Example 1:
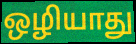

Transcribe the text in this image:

ஒழியாது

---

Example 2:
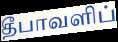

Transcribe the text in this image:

தீபாவளிப்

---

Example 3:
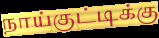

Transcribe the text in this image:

நாய்குட்டிக்கு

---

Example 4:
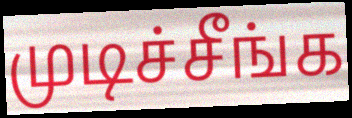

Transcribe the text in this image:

முடிச்சீங்க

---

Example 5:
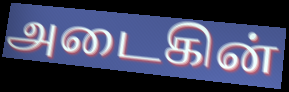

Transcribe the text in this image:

அடைகின்